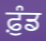
ਫ਼ੁੰਡ